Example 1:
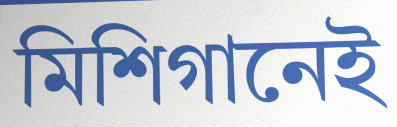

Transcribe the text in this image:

মিশিগানেই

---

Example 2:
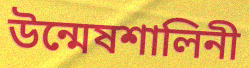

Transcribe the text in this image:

উন্মেষশালিনী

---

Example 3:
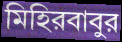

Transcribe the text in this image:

মিহিরবাবুর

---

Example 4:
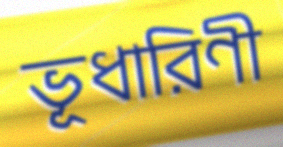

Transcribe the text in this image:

ভূধারিণী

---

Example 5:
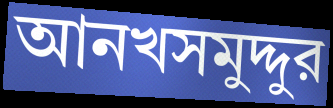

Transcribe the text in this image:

আনখসমুদ্দুর